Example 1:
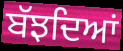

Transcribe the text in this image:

ਬੱਝਦਿਆਂ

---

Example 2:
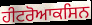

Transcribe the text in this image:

ਹੀਟਰੋਆਕਸਿਨ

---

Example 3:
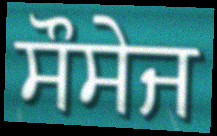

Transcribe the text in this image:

ਸੌਸੇਜ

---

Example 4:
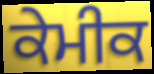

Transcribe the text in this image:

ਕੇਮੀਕ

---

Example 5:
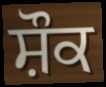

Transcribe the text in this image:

ਸ਼ੌਕ